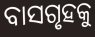
ବାସଗୃହକୁ